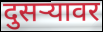
दुसऱ्यावर